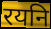
रयनि